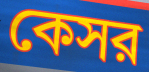
কেসর